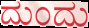
ದುಂದು